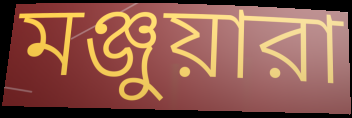
মঞ্জুয়ারা